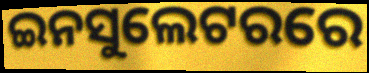
ଇନସୁଲେଟରରେ